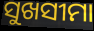
ସୁଖସୀମା